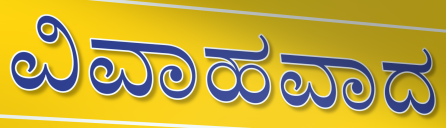
ವಿವಾಹವಾದ